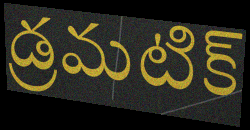
డ్రమటిక్